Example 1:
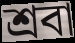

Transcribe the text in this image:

শ্রবা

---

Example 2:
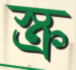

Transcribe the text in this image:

স্ক্র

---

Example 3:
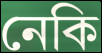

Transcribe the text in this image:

নেকি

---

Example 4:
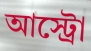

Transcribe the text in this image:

আস্ট্রো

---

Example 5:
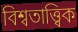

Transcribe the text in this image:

বিশ্বতাত্ত্বিক